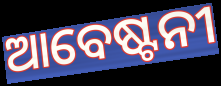
ଆବେଷ୍ଟନୀ